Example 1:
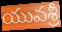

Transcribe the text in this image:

యువశ్రీ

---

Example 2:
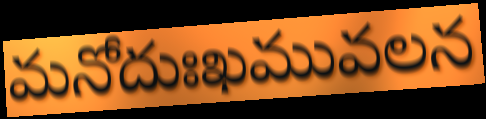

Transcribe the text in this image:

మనోదుఃఖమువలన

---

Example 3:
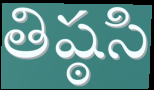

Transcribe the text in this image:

తిష్ఠసి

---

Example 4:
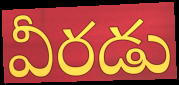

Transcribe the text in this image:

వీరడు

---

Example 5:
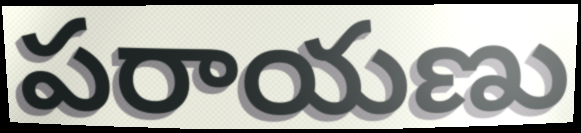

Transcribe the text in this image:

పరాయణు